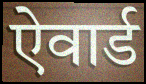
ऐवार्ड